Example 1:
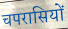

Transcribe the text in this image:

चपरासियों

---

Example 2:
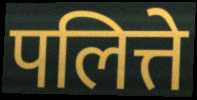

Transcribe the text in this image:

पलित्ते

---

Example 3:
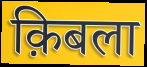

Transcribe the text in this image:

क़िबला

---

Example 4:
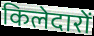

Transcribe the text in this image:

किलेदारों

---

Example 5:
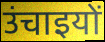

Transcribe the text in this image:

उंचाइयों